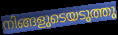
നിങ്ങളുടെയടുത്തു